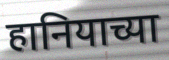
हानियाच्या